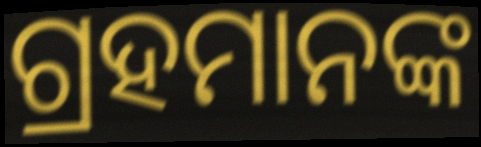
ଗ୍ରହମାନଙ୍କ